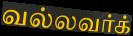
வல்லவர்க்